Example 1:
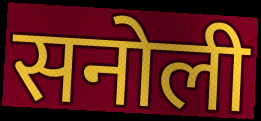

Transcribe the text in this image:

सनोली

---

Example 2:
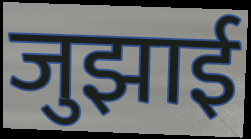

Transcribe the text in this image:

जुझाई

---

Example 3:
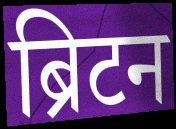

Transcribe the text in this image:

ब्रिटन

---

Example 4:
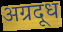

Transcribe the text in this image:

अग्रदूध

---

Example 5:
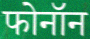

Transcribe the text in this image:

फोनॉन